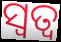
ସ୍ୱତ୍ୱ